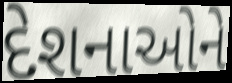
દેશનાઓને